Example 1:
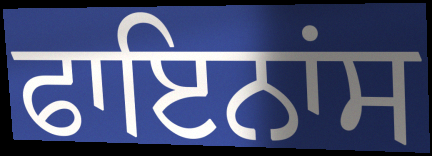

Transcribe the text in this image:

ਫਾਇਨਾਂਸ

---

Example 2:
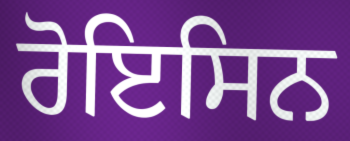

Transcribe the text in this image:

ਰੋਇਸਿਨ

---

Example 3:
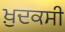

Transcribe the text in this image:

ਖ਼ੁਦਕਸੀ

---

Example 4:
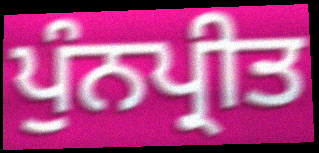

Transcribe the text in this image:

ਪੁੰਨਪ੍ਰੀਤ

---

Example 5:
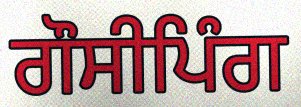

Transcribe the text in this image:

ਗੌਸੀਪਿੰਗ